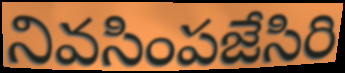
నివసింపజేసిరి